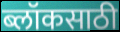
ब्लॉकसाठी